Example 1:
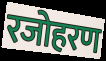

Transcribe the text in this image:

रजोहरण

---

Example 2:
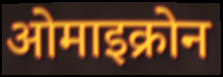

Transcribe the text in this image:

ओमाइक्रोन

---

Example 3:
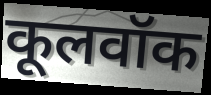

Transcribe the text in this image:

कूलवॉक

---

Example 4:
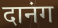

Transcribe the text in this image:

दानंग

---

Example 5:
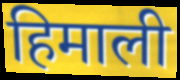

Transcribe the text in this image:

हिमाली